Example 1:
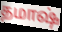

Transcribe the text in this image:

தமாஷ்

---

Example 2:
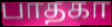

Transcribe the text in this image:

பாதகா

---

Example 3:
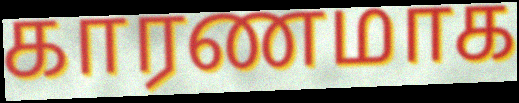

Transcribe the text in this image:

காரணமாக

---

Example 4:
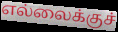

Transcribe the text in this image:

எல்லைக்குச்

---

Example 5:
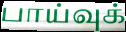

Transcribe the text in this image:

பாய்வுக்